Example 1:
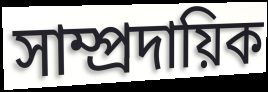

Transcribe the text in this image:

সাম্প্রদায়িক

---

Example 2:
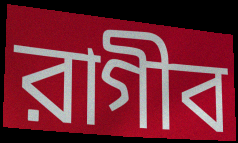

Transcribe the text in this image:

রাগীব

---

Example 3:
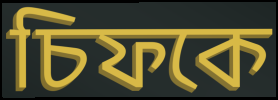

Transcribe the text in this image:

চিফকে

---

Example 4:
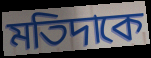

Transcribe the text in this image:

মতিদাকে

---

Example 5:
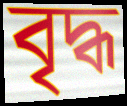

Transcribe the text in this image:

বৃদ্ধ